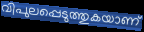
വിപുലപ്പെടുത്തുകയാണ്